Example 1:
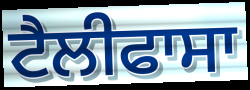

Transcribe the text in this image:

ਟੈਲੀਫਾਸਾ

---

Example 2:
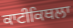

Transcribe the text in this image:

ਕਾਟੀਕਿਥਲਾ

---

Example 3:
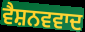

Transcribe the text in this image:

ਵੈਸ਼ਨਵਵਾਦ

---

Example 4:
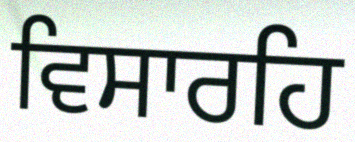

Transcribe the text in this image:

ਵਿਸਾਰਹਿ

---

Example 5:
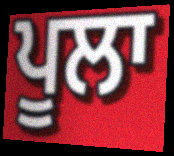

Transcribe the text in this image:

ਪੂਲਾ